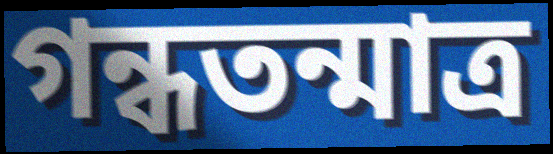
গন্ধতন্মাত্র